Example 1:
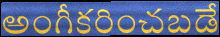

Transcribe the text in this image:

అంగీకరించబడే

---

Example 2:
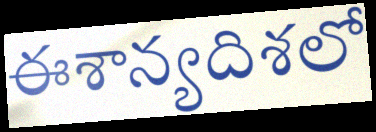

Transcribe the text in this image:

ఈశాన్యదిశలో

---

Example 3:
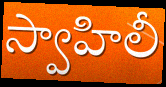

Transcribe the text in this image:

స్వాహిలీ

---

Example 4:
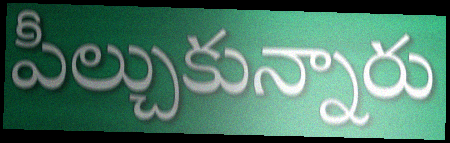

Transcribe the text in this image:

పీల్చుకున్నారు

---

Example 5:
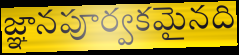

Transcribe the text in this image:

జ్ఞానపూర్వకమైనది